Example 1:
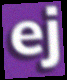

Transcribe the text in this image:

ej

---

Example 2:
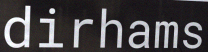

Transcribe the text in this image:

dirhams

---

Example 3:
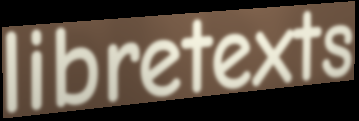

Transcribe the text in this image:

libretexts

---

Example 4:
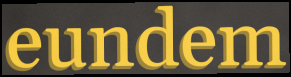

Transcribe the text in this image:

eundem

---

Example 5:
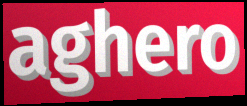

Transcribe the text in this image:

aghero